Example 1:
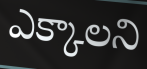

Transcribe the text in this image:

ఎక్కాలని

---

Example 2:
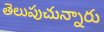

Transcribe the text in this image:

తెలుపుచున్నారు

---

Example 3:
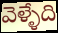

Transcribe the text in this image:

వెళ్ళేది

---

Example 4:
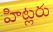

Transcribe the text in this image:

హిట్లరు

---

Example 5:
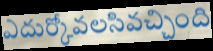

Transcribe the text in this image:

ఎదుర్కోవలసివచ్చింది